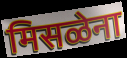
मिसळेना